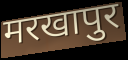
मरखापुर